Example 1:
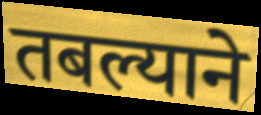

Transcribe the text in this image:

तबल्याने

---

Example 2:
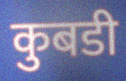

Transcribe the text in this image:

कुबडी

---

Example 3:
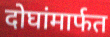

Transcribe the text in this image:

दोघांमार्फत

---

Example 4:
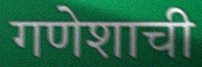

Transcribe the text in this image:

गणेशाची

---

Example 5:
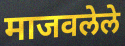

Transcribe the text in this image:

माजवलेले